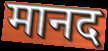
मानद